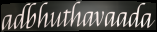
adbhuthavaada